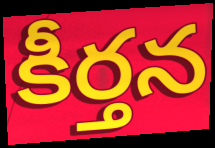
కీర్తన